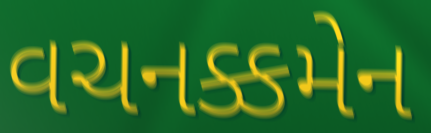
વચનક્કમેન